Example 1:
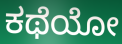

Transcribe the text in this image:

ಕಥೆಯೋ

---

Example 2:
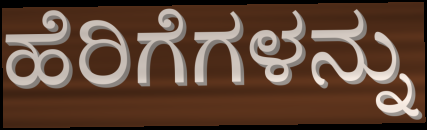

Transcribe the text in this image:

ಹೆರಿಗೆಗಳನ್ನು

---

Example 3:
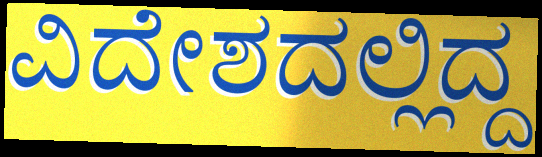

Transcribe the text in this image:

ವಿದೇಶದಲ್ಲಿದ್ದ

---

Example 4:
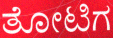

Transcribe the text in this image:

ತೋಟಿಗ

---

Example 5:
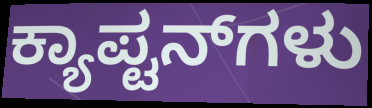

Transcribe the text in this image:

ಕ್ಯಾಪ್ಟನ್‌ಗಳು